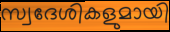
സ്വദേശികളുമായി